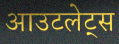
आउटलेट्स